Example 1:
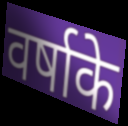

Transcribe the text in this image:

वर्षाके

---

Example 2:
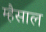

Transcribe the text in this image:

म्हैसाल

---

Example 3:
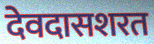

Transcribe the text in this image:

देवदासशरत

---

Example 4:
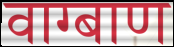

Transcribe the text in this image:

वाग्बाण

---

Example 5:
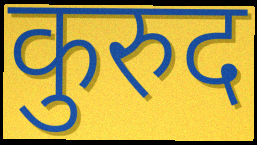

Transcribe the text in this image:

कुरुद